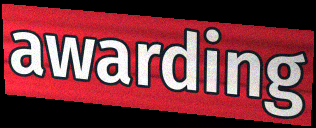
awarding